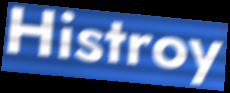
Histroy